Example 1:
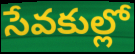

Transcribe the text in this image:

సేవకుల్లో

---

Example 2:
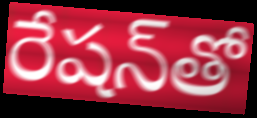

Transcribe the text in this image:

రేషన్‌తో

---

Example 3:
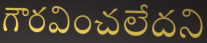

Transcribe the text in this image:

గౌరవించలేదని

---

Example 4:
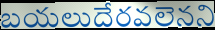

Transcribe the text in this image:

బయలుదేరవలెనని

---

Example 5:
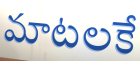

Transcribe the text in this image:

మాటలకే